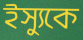
ইস্যুকে